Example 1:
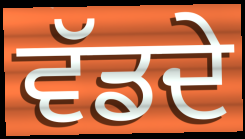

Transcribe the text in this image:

ਵੱਡਦੇ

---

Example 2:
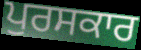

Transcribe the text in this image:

ਪੁਰਸਕਾਰ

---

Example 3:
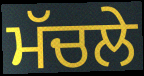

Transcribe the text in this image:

ਮੱਚਲੇ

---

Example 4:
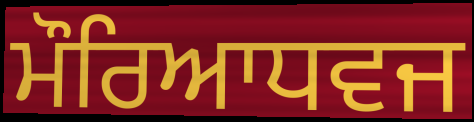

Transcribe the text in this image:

ਮੌਰਿਆਧਵਜ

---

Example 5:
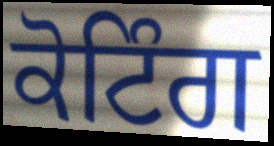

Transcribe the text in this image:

ਕੋਟਿੰਗ